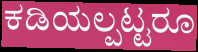
ಕಡಿಯಲ್ಪಟ್ಟರೂ